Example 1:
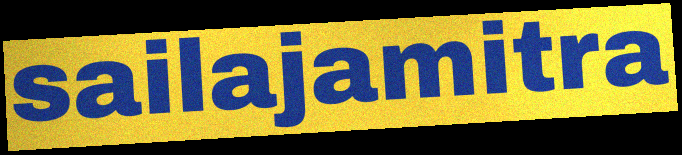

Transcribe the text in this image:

sailajamitra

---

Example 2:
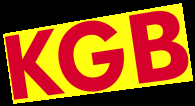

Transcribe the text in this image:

KGB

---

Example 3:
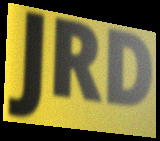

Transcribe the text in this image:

JRD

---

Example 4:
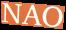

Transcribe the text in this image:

NAO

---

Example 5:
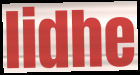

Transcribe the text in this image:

lidhe